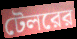
টেলরের